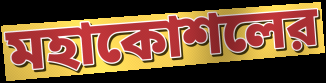
মহাকোশলের